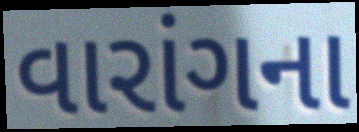
વારાંગના